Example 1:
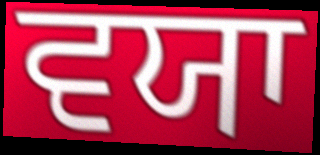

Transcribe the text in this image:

ਵਯਾ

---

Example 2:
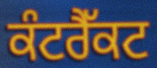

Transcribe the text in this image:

ਕੰਟਰੈੱਕਟ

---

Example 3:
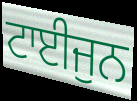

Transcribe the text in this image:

ਟਾਈਜੁਨ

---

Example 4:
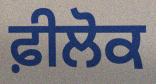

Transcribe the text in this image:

ਫ਼ੀਲੋਕ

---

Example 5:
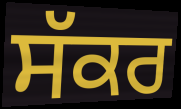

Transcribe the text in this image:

ਸੱਕਰ